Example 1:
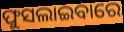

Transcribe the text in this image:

ଫୁସଲାଇବାରେ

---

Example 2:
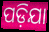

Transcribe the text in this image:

ପଡ଼ିଯା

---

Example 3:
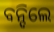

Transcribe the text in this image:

ବନ୍ଦିଲେ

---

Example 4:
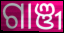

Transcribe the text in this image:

ଗାଞ୍ଜ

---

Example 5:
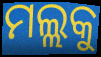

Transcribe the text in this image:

ମଲ୍ଲକୁ